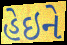
હેઇને